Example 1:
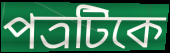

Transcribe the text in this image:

পত্রটিকে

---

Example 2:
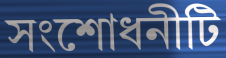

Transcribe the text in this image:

সংশোধনীটি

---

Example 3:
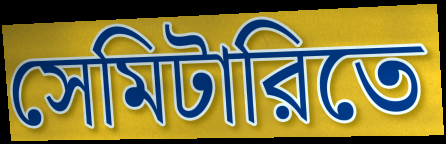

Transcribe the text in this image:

সেমিটারিতে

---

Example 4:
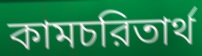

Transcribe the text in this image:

কামচরিতার্থ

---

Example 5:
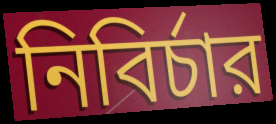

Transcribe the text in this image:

নিবির্চার